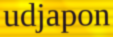
udjapon